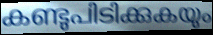
കണ്ടുപിടിക്കുകയും